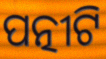
ପତ୍ନୀଟି